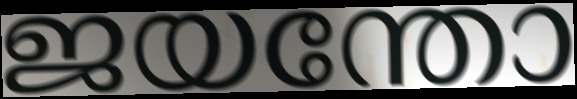
ജയന്തോ